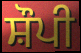
ਸ਼ੌਪੀ